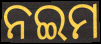
ନଇମ